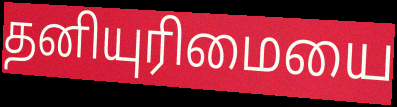
தனியுரிமையை